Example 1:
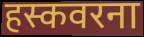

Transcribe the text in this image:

हस्कवरना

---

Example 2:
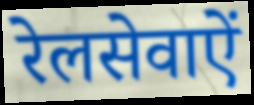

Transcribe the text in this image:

रेलसेवाऐं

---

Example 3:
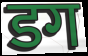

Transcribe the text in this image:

डग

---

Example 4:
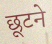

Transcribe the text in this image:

छूटने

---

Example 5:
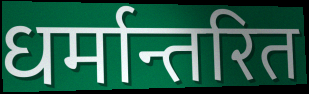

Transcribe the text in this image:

धर्मान्तरित